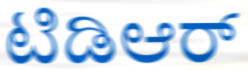
ಟಿಡಿಆರ್